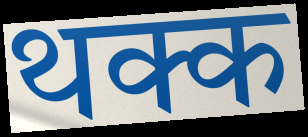
थक्क